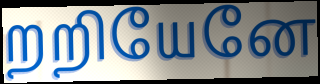
றறியேனே